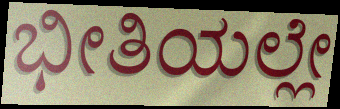
ಭೀತಿಯಲ್ಲೇ